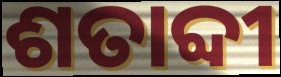
ଶତାବ୍ଦୀ